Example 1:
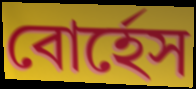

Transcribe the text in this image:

বোর্হেস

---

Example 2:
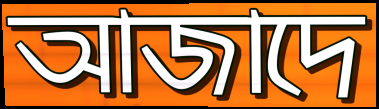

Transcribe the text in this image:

আজাদে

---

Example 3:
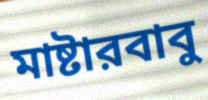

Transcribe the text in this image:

মাষ্টারবাবু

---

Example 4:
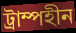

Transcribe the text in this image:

ট্রাম্পহীন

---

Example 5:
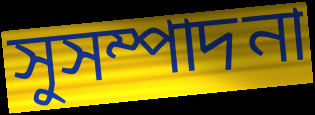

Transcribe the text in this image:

সুসম্পাদনা